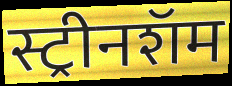
स्ट्रीनशॅम